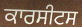
ਕਾਰਸੀਟਸ